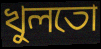
খুলতো